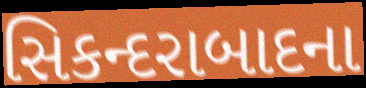
સિકન્દરાબાદના